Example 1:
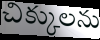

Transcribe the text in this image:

చిక్కులను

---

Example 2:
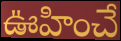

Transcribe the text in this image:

ఊహించే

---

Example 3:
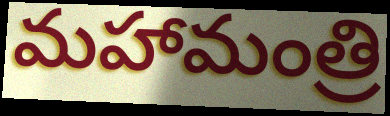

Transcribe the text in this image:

మహామంత్రి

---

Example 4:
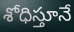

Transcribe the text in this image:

శోధిస్తూనే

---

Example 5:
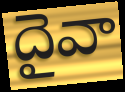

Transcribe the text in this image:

దైవా